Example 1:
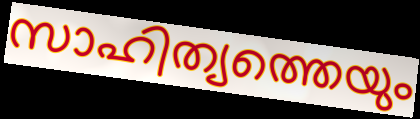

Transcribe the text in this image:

സാഹിത്യത്തെയും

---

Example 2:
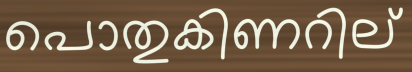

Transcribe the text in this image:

പൊതുകിണറില്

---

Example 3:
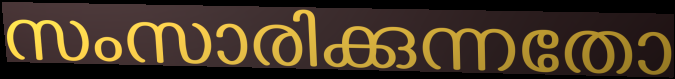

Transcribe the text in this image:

സംസാരിക്കുന്നതോ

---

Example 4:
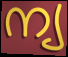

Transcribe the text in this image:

ന്യ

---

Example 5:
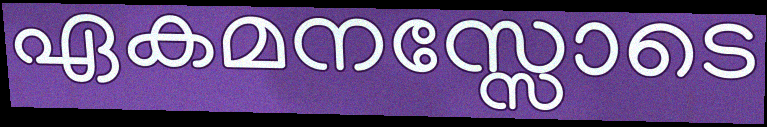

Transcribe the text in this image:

ഏകമനസ്സോടെ